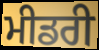
ਮੀਡਰੀ